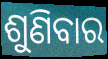
ଶୁଣିବାର